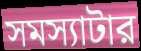
সমস্যাটার